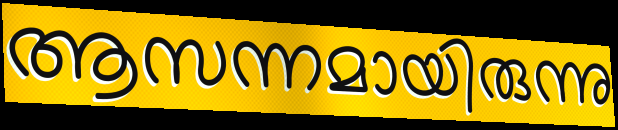
ആസന്നമായിരുന്നു